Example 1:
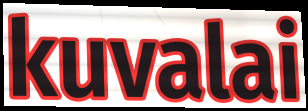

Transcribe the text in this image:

kuvalai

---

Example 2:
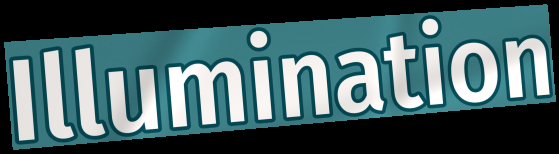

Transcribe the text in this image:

Illumination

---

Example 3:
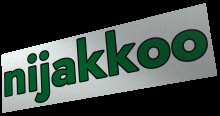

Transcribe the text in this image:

nijakkoo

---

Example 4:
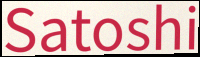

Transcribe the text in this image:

Satoshi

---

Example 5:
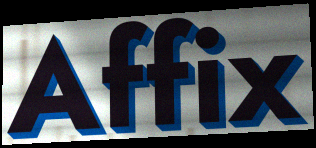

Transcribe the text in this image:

Affix